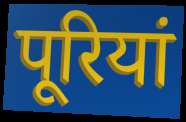
पूरियां